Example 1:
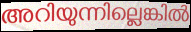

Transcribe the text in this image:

അറിയുന്നില്ലെങ്കിൽ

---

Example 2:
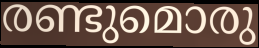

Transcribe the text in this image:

രണ്ടുമൊരു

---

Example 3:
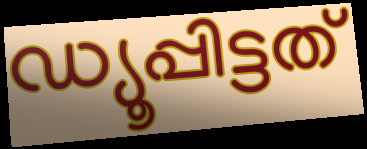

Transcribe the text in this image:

ഡ്യൂപ്പിട്ടത്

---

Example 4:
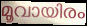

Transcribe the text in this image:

മൂവായിരം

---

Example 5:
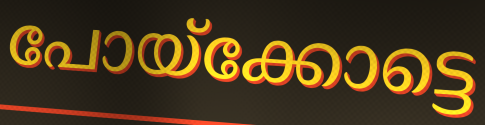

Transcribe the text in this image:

പോയ്ക്കോട്ടെ